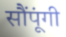
सौंपूंगी